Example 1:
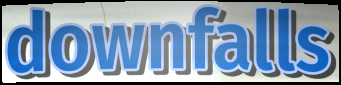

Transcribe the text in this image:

downfalls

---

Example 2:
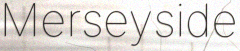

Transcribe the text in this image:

Merseyside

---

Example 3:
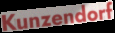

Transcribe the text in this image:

Kunzendorf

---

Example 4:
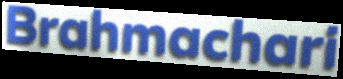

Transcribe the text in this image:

Brahmachari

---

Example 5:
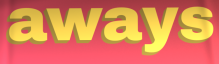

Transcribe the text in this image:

aways